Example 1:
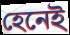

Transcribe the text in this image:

হেনেই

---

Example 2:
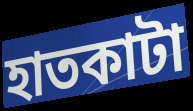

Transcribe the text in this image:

হাতকাটা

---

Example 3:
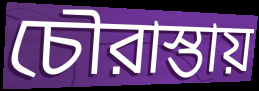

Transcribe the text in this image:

চৌরাস্তায়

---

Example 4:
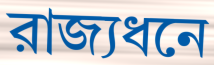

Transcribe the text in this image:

রাজ্যধনে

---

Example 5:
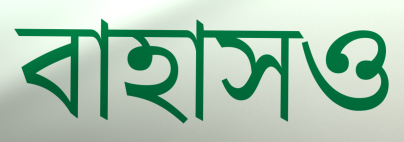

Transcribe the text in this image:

বাহাসও